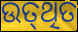
ଉତ୍‌ଥିତ